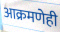
आक्रमणेही